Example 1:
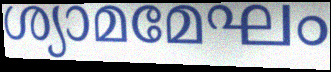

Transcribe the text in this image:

ശ്യാമമേഘം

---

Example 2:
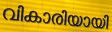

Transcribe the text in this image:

വികാരിയായി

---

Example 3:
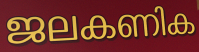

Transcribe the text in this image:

ജലകണിക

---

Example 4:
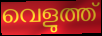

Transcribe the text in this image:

വെളുത്ത്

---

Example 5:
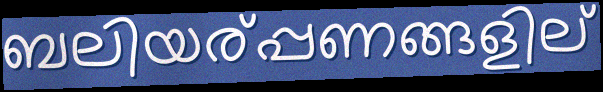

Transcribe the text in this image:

ബലിയര്പ്പണങ്ങളില്